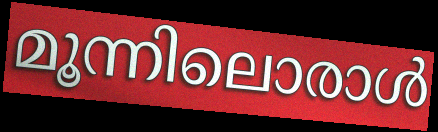
മൂന്നിലൊരാൾ